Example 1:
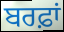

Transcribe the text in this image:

ਬਰਫ਼ਾਂ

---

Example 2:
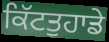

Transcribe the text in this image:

ਕਿੱਟਤੁਹਾਡੇ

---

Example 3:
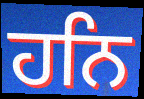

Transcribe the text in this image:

ਹਨਿ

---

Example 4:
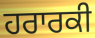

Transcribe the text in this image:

ਹਰਾਰਕੀ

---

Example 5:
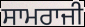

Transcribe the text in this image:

ਸਾਮਰਾਜੀ